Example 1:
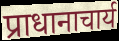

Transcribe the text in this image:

प्राधानाचार्य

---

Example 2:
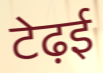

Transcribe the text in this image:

टेढ़ई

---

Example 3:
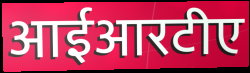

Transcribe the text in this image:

आईआरटीए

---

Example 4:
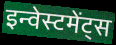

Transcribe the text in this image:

इन्वेस्टमेंट्स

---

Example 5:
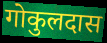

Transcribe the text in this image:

गोकुलदास